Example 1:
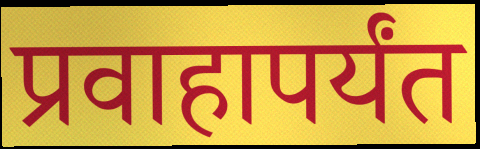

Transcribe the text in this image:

प्रवाहापर्यंत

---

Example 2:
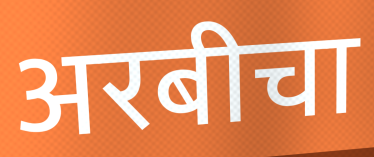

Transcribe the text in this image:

अरबीचा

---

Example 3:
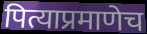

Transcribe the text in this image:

पित्याप्रमाणेच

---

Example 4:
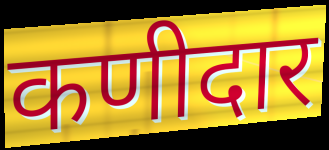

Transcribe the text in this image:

कणीदार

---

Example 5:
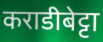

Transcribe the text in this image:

कराडीबेट्टा